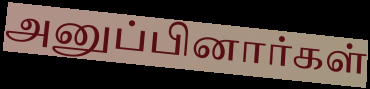
அனுப்பினார்கள்